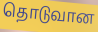
தொடுவான